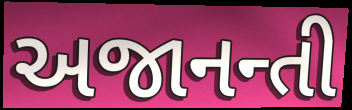
અજાનન્તી